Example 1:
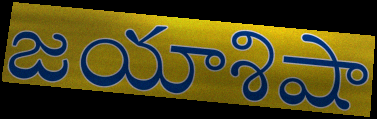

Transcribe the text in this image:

జయాశిషా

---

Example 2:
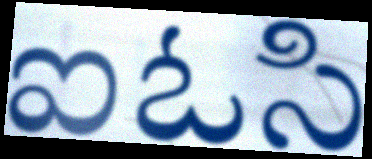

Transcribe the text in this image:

ఐఓసి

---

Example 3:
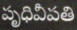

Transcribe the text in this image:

పృధివీపతి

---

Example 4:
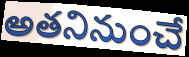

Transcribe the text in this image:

అతనినుంచే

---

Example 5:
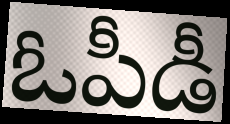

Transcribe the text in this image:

ఓపీడీ